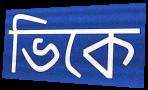
ভিকে